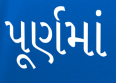
પૂર્ણમાં